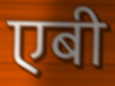
एबी